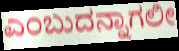
ಎಂಬುದನ್ನಾಗಲೀ